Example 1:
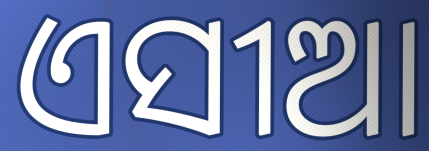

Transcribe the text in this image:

ଏସୀଆ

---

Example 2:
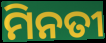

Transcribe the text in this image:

ମିନତୀ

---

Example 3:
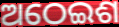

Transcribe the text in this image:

ଅଠେଇଶ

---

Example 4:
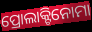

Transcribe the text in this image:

ପ୍ରୋଲାକ୍ଟିନୋମା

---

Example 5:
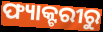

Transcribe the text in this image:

ଫ୍ୟାକ୍ଟରୀରୁ